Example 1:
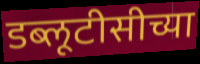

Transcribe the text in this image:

डब्लूटीसीच्या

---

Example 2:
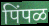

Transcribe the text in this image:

पिंपळ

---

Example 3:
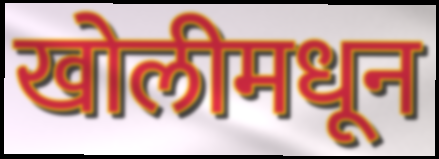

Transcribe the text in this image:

खोलीमधून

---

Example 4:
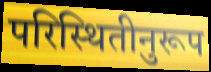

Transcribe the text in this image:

परिस्थितीनुरूप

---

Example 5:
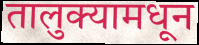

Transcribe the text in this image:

तालुक्यामधून